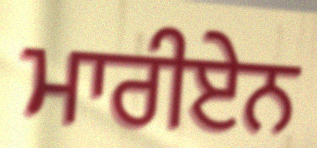
ਮਾਰੀਏਨ